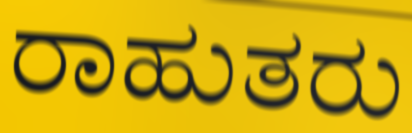
ರಾಹುತರು